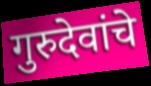
गुरुदेवांचे